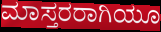
ಮಾಸ್ತರರಾಗಿಯೂ